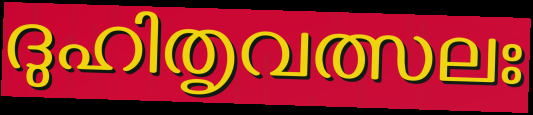
ദുഹിതൃവത്സലഃ